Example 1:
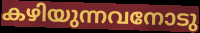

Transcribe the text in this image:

കഴിയുന്നവനോടു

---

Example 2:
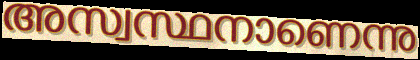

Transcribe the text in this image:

അസ്വസ്ഥനാണെന്നു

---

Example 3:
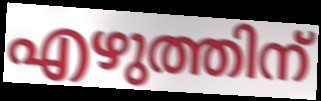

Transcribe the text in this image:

എഴുത്തിന്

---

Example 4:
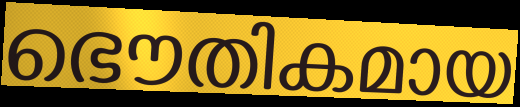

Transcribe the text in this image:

ഭൌതികമായ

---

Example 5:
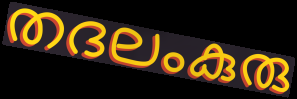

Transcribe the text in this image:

തദലംകുരു